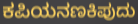
ಕಪಿಯನಣಕಿಪುದು